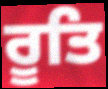
ਰੂਤਿ